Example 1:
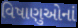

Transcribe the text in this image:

વિષાણુઓનાં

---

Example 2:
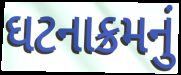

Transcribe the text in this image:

ઘટનાક્રમનું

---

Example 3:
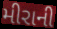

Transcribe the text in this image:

મીરાની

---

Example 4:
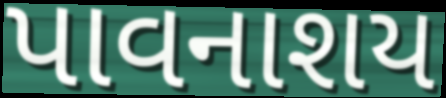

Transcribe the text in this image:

પાવનાશય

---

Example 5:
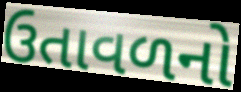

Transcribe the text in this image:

ઉતાવળનો